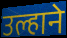
उल्हाने